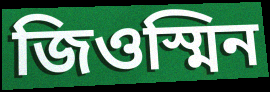
জিওস্মিন